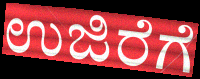
ಉಜಿರೆಗೆ